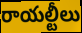
రాయల్టీలు